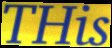
THis